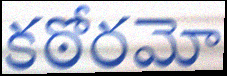
కఠోరమో